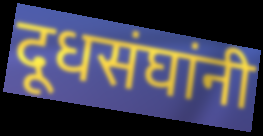
दूधसंघांनी